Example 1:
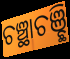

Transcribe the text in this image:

ଚଞ୍ଛାଚଞ୍ଛି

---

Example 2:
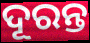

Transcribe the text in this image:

ଦୂରନ୍ତ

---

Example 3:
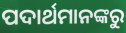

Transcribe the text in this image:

ପଦାର୍ଥମାନଙ୍କରୁ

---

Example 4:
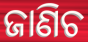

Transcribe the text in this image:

ଜାଣିଚ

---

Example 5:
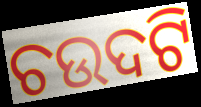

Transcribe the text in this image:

ଚଉଦଟି